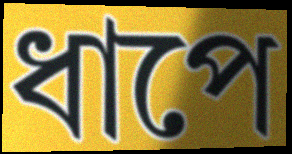
ধাপে